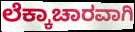
ಲೆಕ್ಕಾಚಾರವಾಗಿ